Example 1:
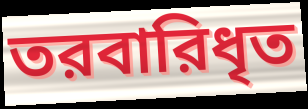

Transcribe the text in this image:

তরবারিধৃত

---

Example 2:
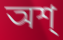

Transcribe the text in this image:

অশ্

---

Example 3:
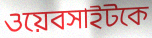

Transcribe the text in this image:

ওয়েবসাইটকে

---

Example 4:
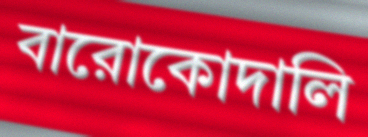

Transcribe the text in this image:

বারোকোদালি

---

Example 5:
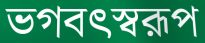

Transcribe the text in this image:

ভগবৎস্বরূপ